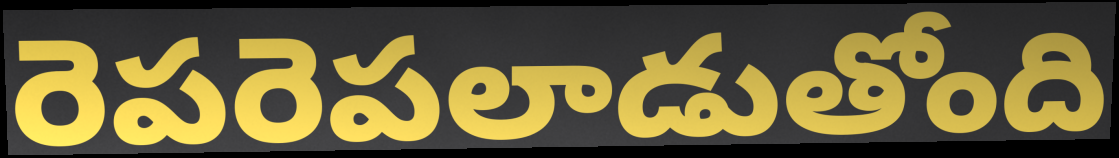
రెపరెపలాడుతోంది